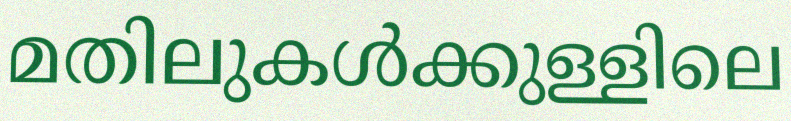
മതിലുകൾക്കുള്ളിലെ